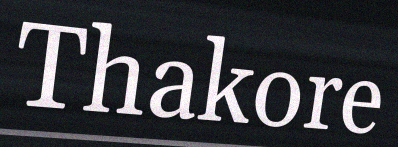
Thakore